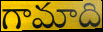
గామాది